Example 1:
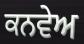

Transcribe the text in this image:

ਕਨਵੇਅ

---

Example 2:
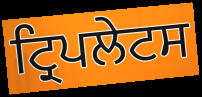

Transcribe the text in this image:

ਟ੍ਰਿਪਲੇਟਸ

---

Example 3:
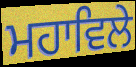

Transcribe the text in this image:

ਮਹਾਵਿਲੇ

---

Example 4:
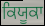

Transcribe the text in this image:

ਕਿਯੂਕਾ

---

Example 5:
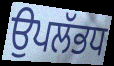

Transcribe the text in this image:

ਉਪਲੱਭਧ